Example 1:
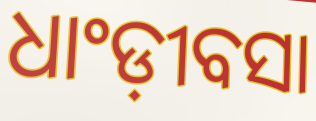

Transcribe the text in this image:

ଧାଂଡ଼ୀବସା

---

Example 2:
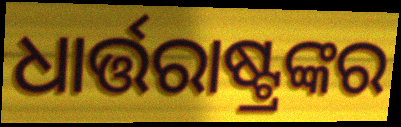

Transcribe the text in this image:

ଧାର୍ତ୍ତରାଷ୍ଟ୍ରଙ୍କର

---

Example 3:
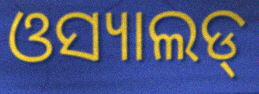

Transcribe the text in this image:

ଓସ୍ୟାଲଡ୍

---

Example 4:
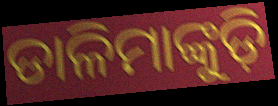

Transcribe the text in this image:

ଡାଳିମାଙ୍କୁଡ଼ି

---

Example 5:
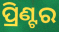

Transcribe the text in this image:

ପ୍ରିଣ୍ଟର